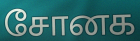
சோனக